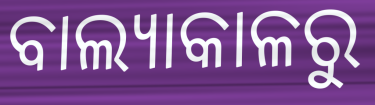
ବାଲ୍ୟାକାଳରୁ